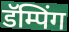
डॅम्पिंग